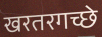
खरतरगच्छे